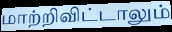
மாற்றிவிட்டாலும்